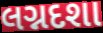
લગ્નદશા